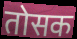
तोसक